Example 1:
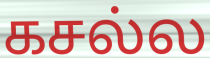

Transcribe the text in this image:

கசல்ல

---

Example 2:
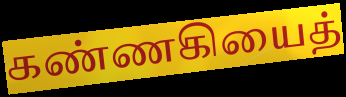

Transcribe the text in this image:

கண்ணகியைத்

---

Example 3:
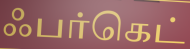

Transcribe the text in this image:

ஃபர்கெட்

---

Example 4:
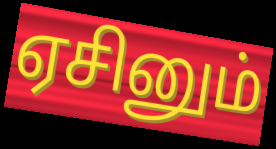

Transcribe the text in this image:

ஏசினும்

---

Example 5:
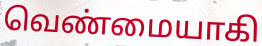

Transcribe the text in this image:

வெண்மையாகி